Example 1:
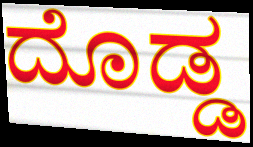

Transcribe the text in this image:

ದೊಡ್ಡ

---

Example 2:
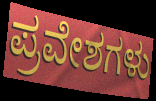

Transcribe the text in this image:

ಪ್ರವೇಶಗಳು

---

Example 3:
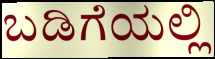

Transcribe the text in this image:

ಬಡಿಗೆಯಲ್ಲಿ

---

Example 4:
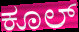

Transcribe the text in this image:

ಕೂಲ್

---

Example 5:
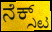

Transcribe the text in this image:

ನೆಕ್ಸ್ಟ್